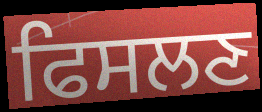
ਫਿਸਲਣ